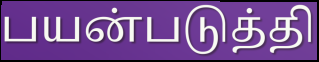
பயன்படுத்தி